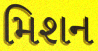
મિશન